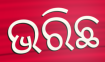
ଭରିଛ